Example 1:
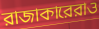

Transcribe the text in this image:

রাজাকারেরাও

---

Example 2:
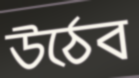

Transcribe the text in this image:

উঠেব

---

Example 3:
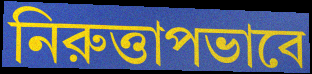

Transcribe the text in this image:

নিরুত্তাপভাবে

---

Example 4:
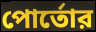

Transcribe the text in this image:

পোর্তোর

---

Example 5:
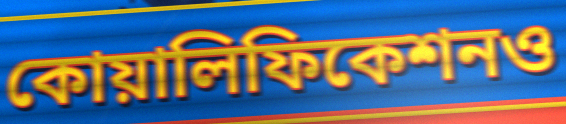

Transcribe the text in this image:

কোয়ালিফিকেশনও